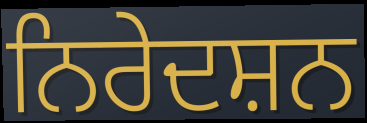
ਨਿਰੇਦਸ਼ਨ